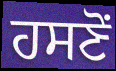
ਹਸਣੋਂ